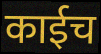
काईच